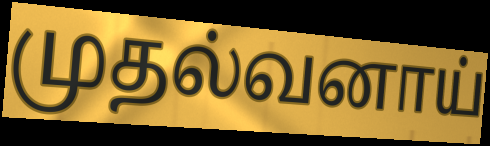
முதல்வனாய்